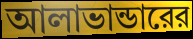
আলাভান্ডারের